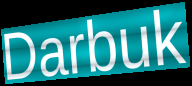
Darbuk